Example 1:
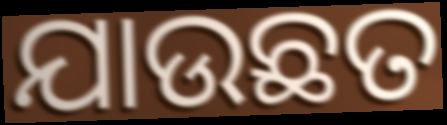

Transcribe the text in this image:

ଯାଉଛତ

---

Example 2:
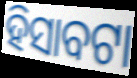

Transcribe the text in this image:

ହିସାବଟା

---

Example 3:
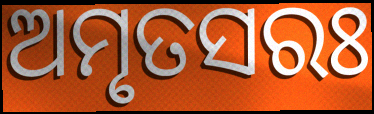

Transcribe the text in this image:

ଅମୃତସରଃ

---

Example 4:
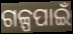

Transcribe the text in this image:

ଗଳ୍ପପାଇଁ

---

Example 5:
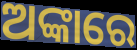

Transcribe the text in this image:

ଅଙ୍କାରେ